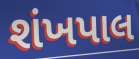
શંખપાલ